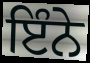
ਇੰਨੇ